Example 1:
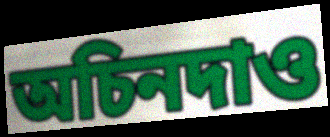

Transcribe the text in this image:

অচিনদাও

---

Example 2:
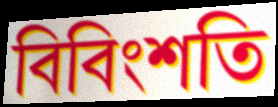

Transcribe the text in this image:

বিবিংশতি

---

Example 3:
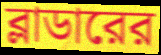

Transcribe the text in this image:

ব্লাডারের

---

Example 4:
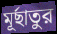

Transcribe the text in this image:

মূর্ছাতুর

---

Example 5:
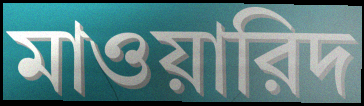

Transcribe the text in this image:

মাওয়ারিদ